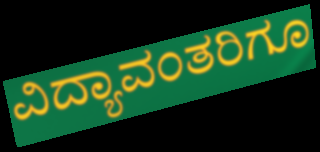
ವಿದ್ಯಾವಂತರಿಗೂ